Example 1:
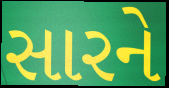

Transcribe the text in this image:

સારને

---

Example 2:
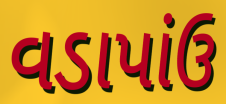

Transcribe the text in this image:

વડાપાંઉ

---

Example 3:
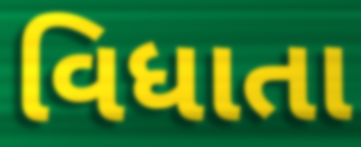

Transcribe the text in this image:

વિધાતા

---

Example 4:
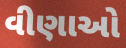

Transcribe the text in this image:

વીણાઓ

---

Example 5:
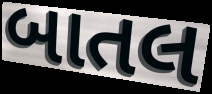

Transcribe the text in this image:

બાતલ